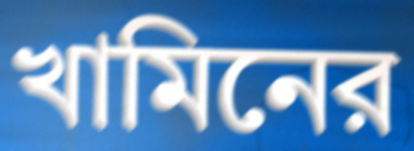
খামিনের